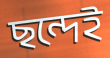
ছন্দেই